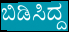
ಬಿಡಿಸಿದ್ದ